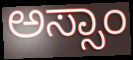
ಅಸ್ಸಾಂ